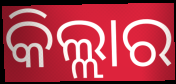
କିଲ୍ଲାର